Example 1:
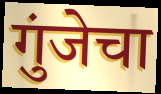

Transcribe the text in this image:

गुंजेचा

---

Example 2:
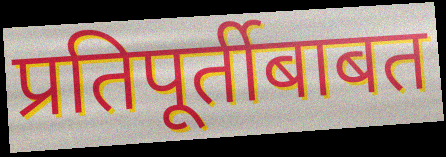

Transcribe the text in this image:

प्रतिपूर्तीबाबत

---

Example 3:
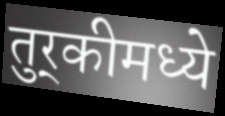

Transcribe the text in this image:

तुर्कीमध्ये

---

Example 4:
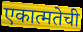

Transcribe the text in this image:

एकात्मतेची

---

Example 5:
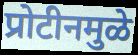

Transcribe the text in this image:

प्रोटीनमुळे